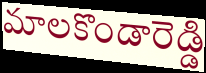
మాలకొండారెడ్డి